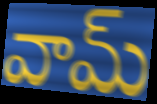
వామ్